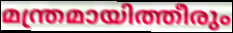
മന്ത്രമായിത്തീരും